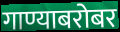
गाण्याबरोबर